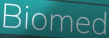
Biomed